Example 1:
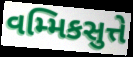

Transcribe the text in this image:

વમ્મિકસુત્તે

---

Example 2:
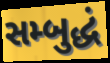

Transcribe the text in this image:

સમ્બુદ્ધં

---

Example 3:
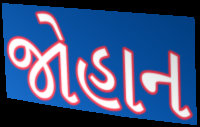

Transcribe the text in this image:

જોહાન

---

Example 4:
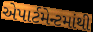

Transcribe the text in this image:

એપાર્ટમેન્ટમાંથી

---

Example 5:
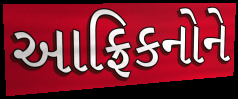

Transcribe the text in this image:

આફ્રિકનોને